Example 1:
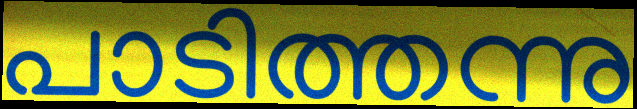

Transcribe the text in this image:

പാടിത്തന്നു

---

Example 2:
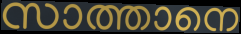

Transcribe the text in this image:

സാത്താനെ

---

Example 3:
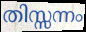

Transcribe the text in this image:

തിസ്സന്നം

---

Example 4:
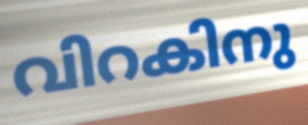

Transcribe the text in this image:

വിറകിനു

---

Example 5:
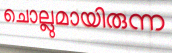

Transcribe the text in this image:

ചൊല്ലുമായിരുന്ന